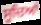
ਸੂਚਿਆਂ